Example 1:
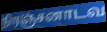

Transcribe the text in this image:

நிரஞ்சனாடவ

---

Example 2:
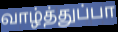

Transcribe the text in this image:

வாழ்த்துப்பா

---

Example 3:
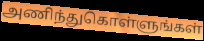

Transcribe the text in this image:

அணிந்துகொள்ளுங்கள்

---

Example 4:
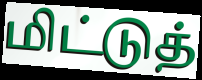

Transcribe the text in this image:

மிட்டுத்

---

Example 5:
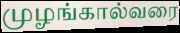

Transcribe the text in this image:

முழங்கால்வரை